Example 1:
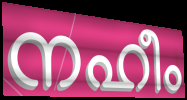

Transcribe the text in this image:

നഹീം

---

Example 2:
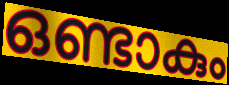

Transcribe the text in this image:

ഒണ്ടാകും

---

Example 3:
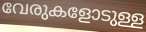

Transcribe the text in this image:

വേരുകളോടുള്ള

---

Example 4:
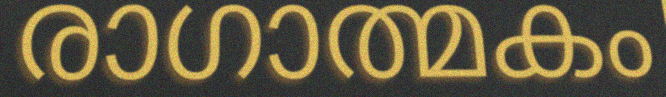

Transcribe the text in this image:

രാഗാത്മകം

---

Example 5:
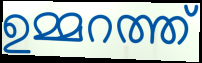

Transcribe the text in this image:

ഉമ്മറത്ത്